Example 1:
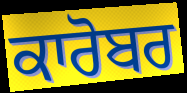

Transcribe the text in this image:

ਕਾਰੋਬਰ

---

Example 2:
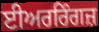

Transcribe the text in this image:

ਈਅਰਰਿੰਗਜ਼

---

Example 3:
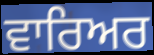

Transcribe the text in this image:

ਵਾਰਿਅਰ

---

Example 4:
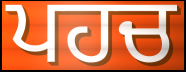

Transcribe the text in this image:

ਪਹਚ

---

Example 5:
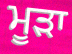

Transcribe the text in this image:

ਮੂੜਾ